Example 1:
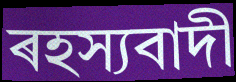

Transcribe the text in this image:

ৰহস্যবাদী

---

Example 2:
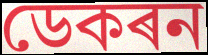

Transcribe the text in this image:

ডেকৰন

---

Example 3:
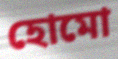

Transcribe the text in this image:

হোমো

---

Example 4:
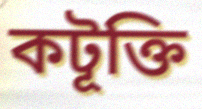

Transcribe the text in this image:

কটূক্তি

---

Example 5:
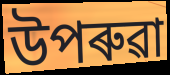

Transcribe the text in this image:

উপৰুৱা